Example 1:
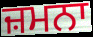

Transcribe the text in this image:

ਜ਼ਮਨਾ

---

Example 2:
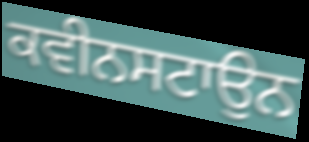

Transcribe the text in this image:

ਕਵੀਨਸਟਾਉਨ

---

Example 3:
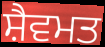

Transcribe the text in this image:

ਸ਼ੈਵਮਤ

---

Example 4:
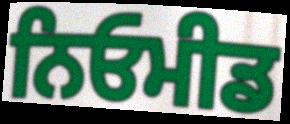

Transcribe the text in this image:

ਨਿਓਮੀਡ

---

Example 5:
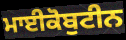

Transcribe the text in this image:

ਮਾਈਕੋਬੁਟੀਨ